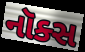
નૉક્સ